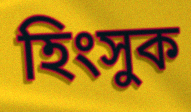
হিংসুক